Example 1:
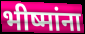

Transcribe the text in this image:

भीष्मांना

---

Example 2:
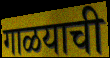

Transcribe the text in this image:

गाळयाची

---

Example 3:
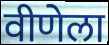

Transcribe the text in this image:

वीणेला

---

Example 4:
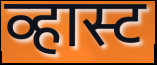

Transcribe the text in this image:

व्हास्ट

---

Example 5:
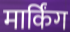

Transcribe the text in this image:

मार्किंग